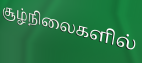
சூழ்நிலைகளில்